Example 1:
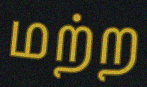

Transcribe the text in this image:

மற்ற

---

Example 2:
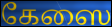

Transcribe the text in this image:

கேஸை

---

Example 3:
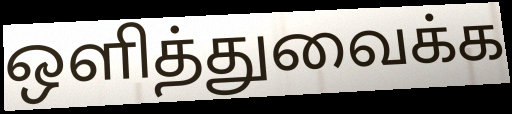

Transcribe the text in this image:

ஒளித்துவைக்க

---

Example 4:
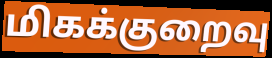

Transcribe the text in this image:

மிகக்குறைவு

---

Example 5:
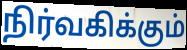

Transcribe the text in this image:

நிர்வகிக்கும்